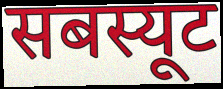
सबस्यूट